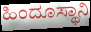
ಹಿಂದೂಸ್ಥಾನಿ